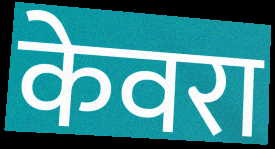
केवरा